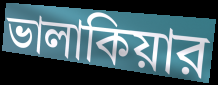
ভালাকিয়ার